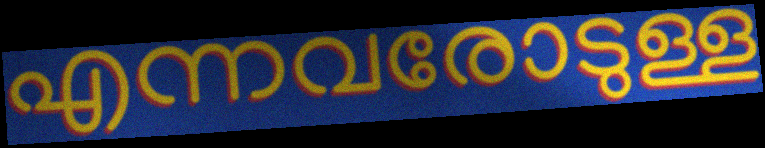
എന്നവരോടുള്ള